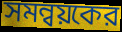
সমন্বয়কের